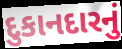
દુકાનદારનું